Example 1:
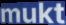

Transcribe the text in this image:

mukt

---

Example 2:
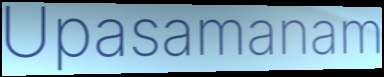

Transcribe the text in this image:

Upasamanam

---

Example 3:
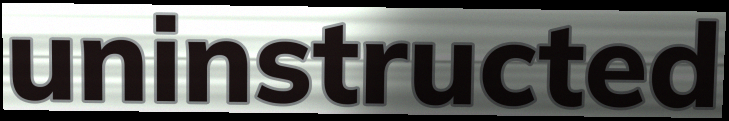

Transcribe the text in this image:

uninstructed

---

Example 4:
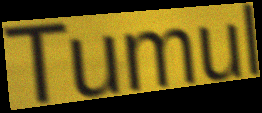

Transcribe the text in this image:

Tumul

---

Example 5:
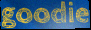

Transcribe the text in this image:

goodie